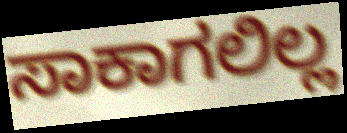
ಸಾಕಾಗಲಿಲ್ಲ